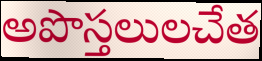
అపొస్తలులచేత